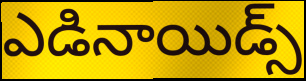
ఎడినాయిడ్స్